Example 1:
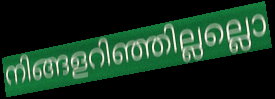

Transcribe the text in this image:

നിങ്ങളറിഞ്ഞില്ലല്ലൊ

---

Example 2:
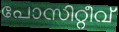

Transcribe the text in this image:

പോസിറ്റീവ്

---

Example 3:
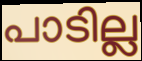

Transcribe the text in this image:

പാടില്ല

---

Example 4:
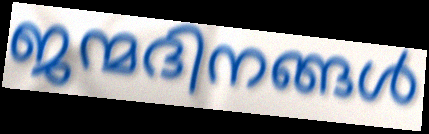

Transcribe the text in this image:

ജന്മദിനങ്ങൾ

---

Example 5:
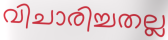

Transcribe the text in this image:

വിചാരിച്ചതല്ല